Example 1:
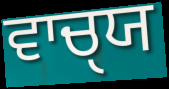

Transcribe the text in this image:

ਵਾਚੑਯ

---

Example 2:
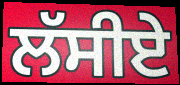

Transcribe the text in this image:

ਲੱਸੀਏ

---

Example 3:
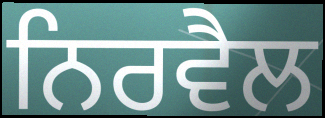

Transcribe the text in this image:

ਨਿਰਵੈਲ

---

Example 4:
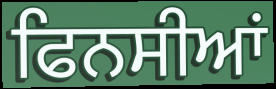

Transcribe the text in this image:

ਫਿਨਸੀਆਂ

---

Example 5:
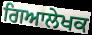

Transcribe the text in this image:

ਗਿਆਲੇਖਕ